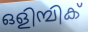
ഒളിമ്പിക്